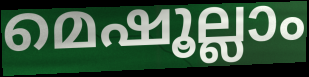
മെഷൂല്ലാം